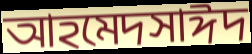
আহমেদসাঈদ